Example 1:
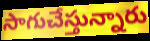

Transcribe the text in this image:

సాగుచేస్తున్నారు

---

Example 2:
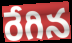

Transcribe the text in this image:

రేగిన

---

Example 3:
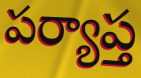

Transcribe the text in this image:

పర్యాప్త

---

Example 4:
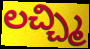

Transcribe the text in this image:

లచ్చ్మి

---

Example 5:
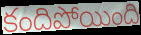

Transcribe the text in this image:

కందిపోయింది